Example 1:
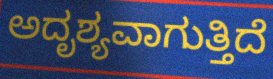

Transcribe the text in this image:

ಅದೃಶ್ಯವಾಗುತ್ತಿದೆ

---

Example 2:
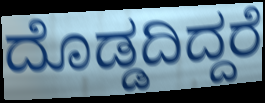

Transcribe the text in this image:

ದೊಡ್ಡದಿದ್ದರೆ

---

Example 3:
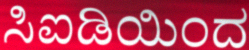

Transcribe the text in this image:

ಸಿಐಡಿಯಿಂದ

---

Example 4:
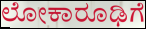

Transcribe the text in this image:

ಲೋಕಾರೂಢಿಗೆ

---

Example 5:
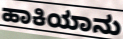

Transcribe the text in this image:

ಹಾಕಿಯಾನು